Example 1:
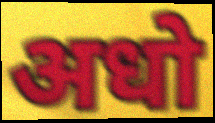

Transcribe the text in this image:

अधो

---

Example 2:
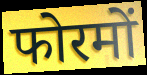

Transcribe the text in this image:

फोरमों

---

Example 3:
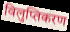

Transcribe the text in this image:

विलुप्तिकरण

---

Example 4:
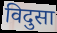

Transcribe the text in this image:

विदुसा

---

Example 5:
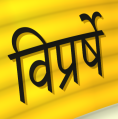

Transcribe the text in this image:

विप्रर्षे